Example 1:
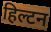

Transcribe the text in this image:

हिल्टन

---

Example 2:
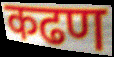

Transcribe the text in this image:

कढण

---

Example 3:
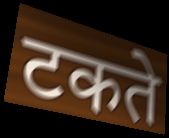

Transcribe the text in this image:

टकते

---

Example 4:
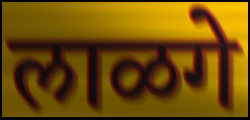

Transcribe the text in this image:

लाळगे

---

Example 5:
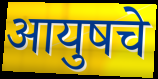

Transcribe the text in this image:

आयुषचे